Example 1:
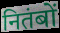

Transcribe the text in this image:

नितंबों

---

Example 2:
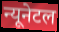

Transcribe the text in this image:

न्यूनेटल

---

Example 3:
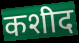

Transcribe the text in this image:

कशीद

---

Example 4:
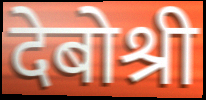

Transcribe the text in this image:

देबोश्री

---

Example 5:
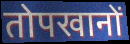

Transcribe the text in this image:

तोपखानों